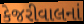
કેજરીવાલનાં